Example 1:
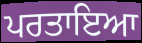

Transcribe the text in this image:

ਪਰਤਾਇਆ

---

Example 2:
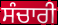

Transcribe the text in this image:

ਸੰਚਾਰੀ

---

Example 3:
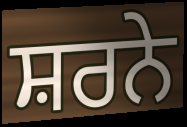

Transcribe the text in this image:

ਸ਼ਰਨੇ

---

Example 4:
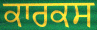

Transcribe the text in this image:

ਕਾਰਕਸ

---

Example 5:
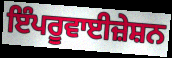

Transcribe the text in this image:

ਇੰਪਰੂਵਾਈਜ਼ੇਸ਼ਨ